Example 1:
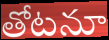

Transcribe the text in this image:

తోటనూ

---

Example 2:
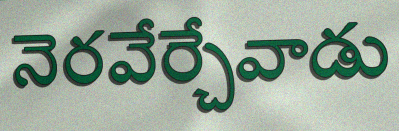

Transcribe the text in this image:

నెరవేర్చేవాడు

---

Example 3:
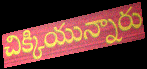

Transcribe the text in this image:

చిక్కియున్నారు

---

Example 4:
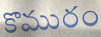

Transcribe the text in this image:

కొమురం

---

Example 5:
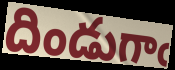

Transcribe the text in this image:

దిండుగాఁ